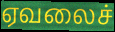
ஏவலைச்